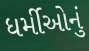
ધર્મીઓનું